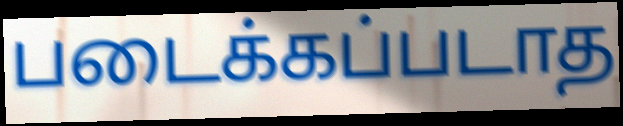
படைக்கப்படாத